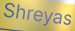
Shreyas